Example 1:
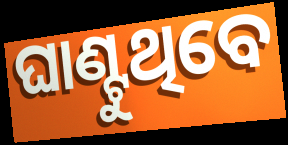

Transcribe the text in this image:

ଘାଣ୍ଟୁଥିବେ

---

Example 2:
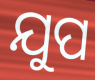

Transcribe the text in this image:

ଯୁପ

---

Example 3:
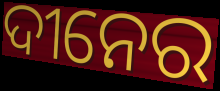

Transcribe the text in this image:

ଦୀନେର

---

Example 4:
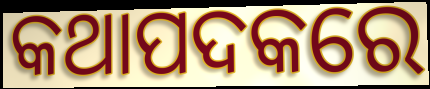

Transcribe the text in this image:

କଥାପଦକରେ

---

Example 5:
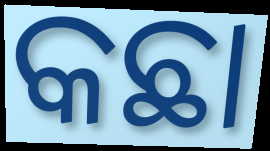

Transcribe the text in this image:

କଛା